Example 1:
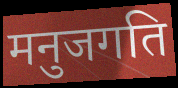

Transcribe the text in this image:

मनुजगति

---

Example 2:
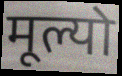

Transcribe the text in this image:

मूल्यो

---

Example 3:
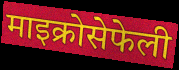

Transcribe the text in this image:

माइक्रोसेफेली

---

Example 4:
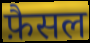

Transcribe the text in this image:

फ़ैसल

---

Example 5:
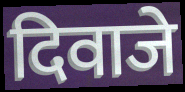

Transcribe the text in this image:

दिवाजे